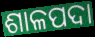
ଶାଳପଦା